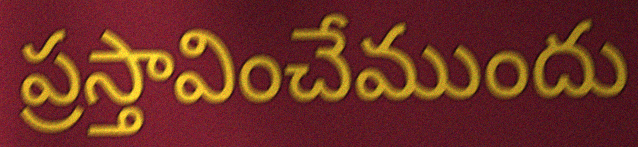
ప్రస్తావించేముందు